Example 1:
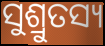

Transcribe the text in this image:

ସୁଶ୍ରୁତସ୍ୟ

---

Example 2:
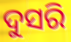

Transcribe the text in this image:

ଦୁସରି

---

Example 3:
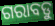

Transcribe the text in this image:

ଗରାବଡୁ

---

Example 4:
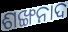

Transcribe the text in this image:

ଶଙ୍ଖନାଦ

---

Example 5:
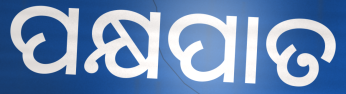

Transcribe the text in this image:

ପକ୍ଷପାତ